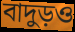
বাদুড়ও